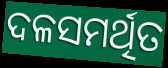
ଦଳସମର୍ଥିତ